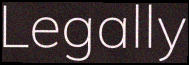
Legally